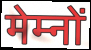
मेम्नों